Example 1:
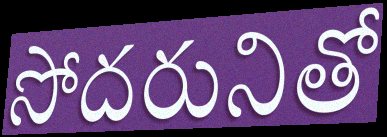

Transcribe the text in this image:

సోదరునితో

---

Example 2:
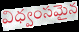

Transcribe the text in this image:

విధ్వంసమైన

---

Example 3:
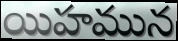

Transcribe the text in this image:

యిహమున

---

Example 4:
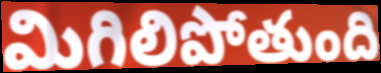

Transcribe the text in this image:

మిగిలిపోతుంది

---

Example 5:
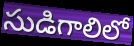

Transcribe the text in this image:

సుడిగాలిలో